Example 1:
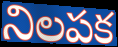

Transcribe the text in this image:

నిలపక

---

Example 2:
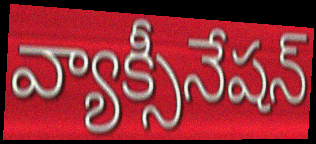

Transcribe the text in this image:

వ్యాక్సీనేషన్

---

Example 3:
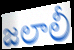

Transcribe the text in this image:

జలాలీ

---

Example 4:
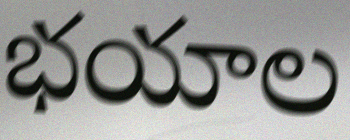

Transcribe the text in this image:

భయాల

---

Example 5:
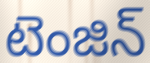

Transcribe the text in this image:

టెంజిన్